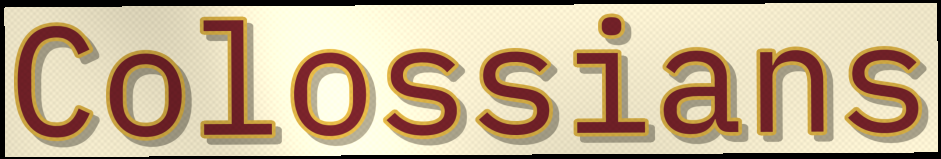
Colossians